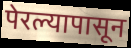
पेरल्यापासून